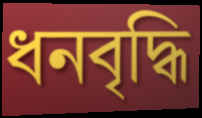
ধনবৃদ্ধি